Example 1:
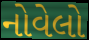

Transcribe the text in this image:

નોવેલો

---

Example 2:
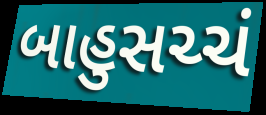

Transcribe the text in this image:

બાહુસચ્ચં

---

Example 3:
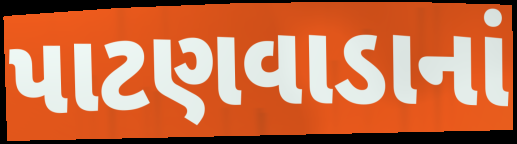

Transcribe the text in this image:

પાટણવાડાનાં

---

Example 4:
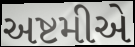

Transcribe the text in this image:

અષ્ટમીએ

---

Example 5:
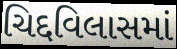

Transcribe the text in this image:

ચિદ્દવિલાસમાં